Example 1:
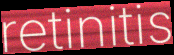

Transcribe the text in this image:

retinitis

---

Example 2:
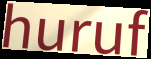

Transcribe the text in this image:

huruf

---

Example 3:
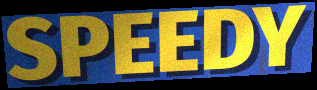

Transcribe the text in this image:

SPEEDY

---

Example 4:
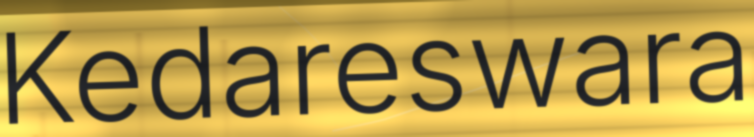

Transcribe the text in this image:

Kedareswara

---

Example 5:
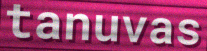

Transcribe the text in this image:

tanuvas